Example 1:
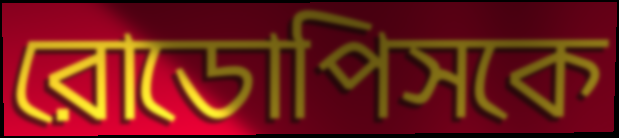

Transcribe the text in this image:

রোডোপিসকে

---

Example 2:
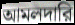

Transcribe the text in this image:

আমলদারি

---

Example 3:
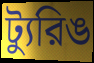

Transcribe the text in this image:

ট্যুরিঙ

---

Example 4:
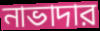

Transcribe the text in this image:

নাভাদার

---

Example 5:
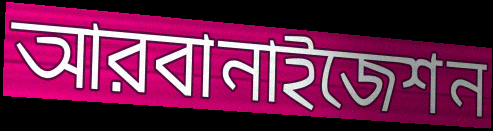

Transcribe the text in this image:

আরবানাইজেশন